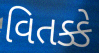
વિતક્કે